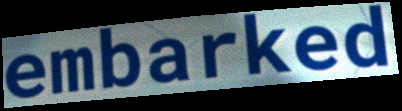
embarked